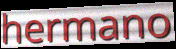
hermano